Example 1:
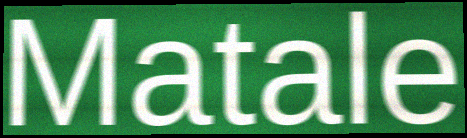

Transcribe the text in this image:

Matale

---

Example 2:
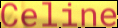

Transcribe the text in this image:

Celine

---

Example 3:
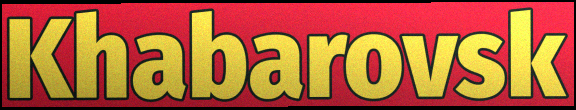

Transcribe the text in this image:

Khabarovsk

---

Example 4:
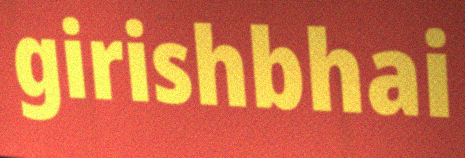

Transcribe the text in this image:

girishbhai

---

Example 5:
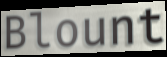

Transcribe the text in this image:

Blount